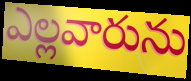
ఎల్లవారును